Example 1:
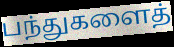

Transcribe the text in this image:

பந்துகளைத்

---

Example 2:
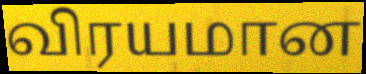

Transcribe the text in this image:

விரயமான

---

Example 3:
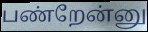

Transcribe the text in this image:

பண்றேன்னு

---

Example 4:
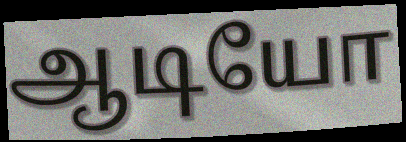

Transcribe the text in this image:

ஆடியோ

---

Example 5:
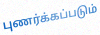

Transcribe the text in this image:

புணர்க்கப்படும்